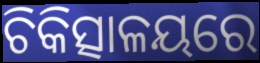
ଚିକିତ୍ସାଳୟରେ